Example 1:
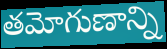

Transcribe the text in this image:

తమోగుణాన్ని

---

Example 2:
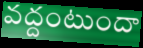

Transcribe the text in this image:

వద్దంటుందా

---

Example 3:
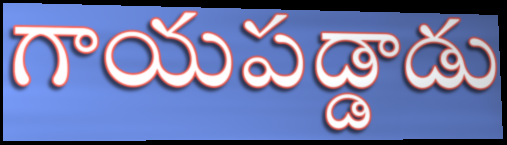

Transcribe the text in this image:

గాయపడ్డాడు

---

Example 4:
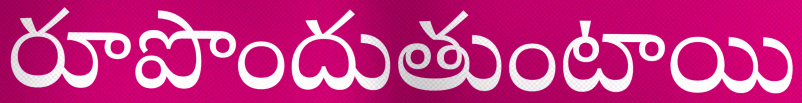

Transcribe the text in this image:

రూపొందుతుంటాయి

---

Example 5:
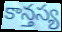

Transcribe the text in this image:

కాన్తస్య